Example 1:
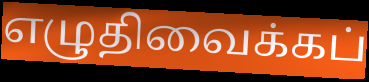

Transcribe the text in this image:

எழுதிவைக்கப்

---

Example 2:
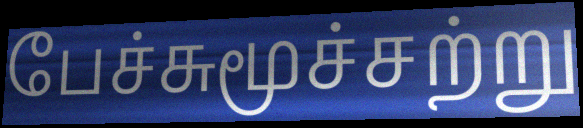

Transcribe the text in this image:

பேச்சுமூச்சற்று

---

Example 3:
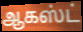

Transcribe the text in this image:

ஆகஸ்ட்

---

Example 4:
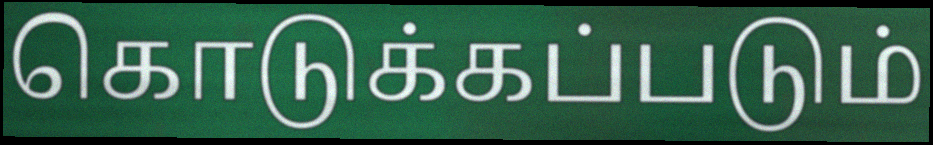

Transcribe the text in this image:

கொடுக்கப்படும்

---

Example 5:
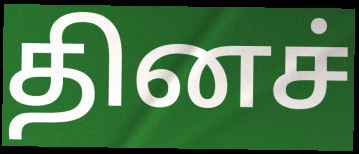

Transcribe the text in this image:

தினச்